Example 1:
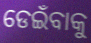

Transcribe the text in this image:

ଡେଇଁବାକୁ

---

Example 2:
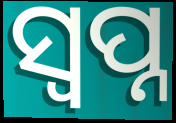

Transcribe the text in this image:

ସ୍ବପ୍ନ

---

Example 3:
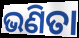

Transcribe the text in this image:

ଭଣିତା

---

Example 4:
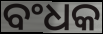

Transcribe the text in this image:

ବଂଧକ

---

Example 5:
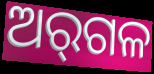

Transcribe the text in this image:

ଅର୍‌ଗଳ